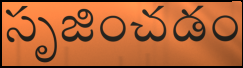
సృజించడం